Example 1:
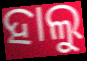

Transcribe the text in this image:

ହାଲୁ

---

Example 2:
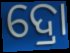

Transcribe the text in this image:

ଦ୍ରୋ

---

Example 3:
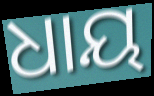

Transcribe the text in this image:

ଧାୟ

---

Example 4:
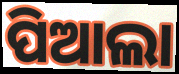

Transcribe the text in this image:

ପିଆଲା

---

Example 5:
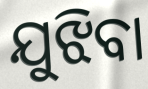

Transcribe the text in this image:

ଯୁଝିବା